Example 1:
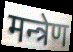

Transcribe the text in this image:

मन्त्रेण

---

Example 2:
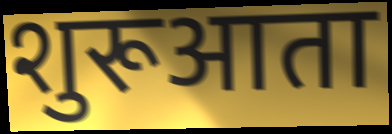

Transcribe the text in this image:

शुरूआता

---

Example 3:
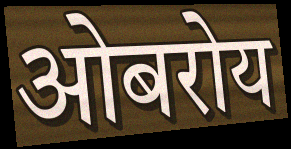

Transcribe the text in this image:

ओबरोय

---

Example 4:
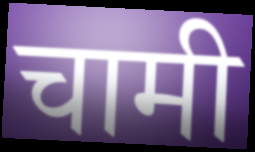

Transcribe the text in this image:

चामी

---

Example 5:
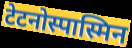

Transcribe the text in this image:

टेटनोस्पास्मिन